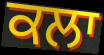
ਕਲਾ